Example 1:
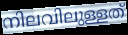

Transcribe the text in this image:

നിലവിലുള്ളത്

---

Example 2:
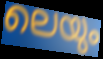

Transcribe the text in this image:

ലെയും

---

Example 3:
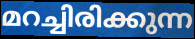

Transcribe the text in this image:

മറച്ചിരിക്കുന്ന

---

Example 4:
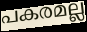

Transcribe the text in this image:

പകരമല്ല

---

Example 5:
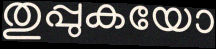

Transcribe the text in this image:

തുപ്പുകയോ